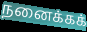
நனைக்கக்